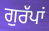
ਗੁਰੱਪਾਂ